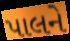
પાલને